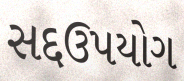
સદ્દઉપયોગ